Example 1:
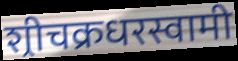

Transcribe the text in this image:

श्रीचक्रधरस्वामी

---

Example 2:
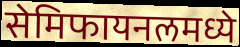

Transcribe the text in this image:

सेमिफायनलमध्ये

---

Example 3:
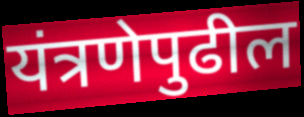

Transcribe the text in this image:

यंत्रणेपुढील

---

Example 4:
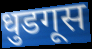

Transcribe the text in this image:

धुडगूस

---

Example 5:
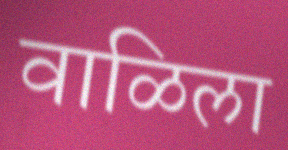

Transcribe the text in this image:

वाळिला